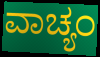
ವಾಚ್ಯಂ